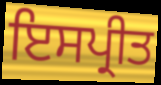
ਇਸਪ੍ਰੀਤ